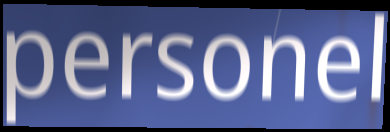
personel